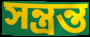
সন্ত্রন্ত